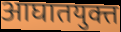
आघातयुक्त